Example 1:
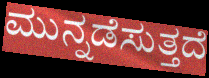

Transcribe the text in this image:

ಮುನ್ನಡೆಸುತ್ತದೆ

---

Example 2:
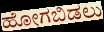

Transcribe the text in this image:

ಹೋಗಬಿಡಲು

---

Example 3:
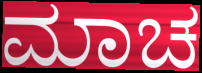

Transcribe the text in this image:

ಮಾಚ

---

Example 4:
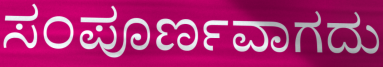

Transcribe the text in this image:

ಸಂಪೂರ್ಣವಾಗದು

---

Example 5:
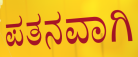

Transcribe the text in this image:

ಪತನವಾಗಿ